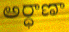
అర్ధాణా